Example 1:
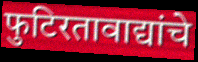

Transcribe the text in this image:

फुटिरतावाद्यांचे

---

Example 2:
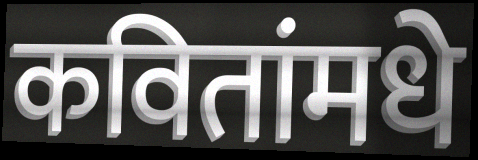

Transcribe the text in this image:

कवितांमधे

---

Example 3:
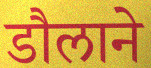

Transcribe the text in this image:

डौलाने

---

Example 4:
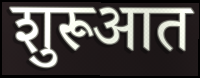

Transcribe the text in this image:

शुरूआत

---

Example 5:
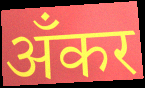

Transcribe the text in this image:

अँकर